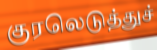
குரலெடுத்துச்